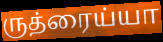
ருத்ரைய்யா